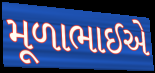
મૂળાભાઈએ